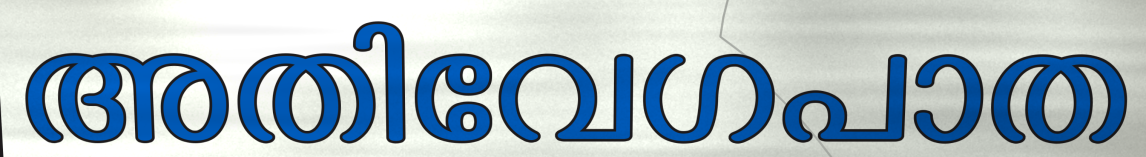
അതിവേഗപാത